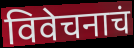
विवेचनाचं